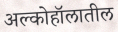
अल्कोहॉलातील